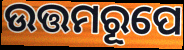
ଉତ୍ତମରୂପେ